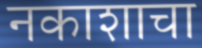
नकाशाचा